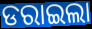
ଡରାଇଲା